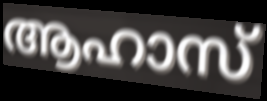
ആഹാസ്